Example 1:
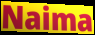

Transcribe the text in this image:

Naima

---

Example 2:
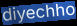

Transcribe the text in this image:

diyechho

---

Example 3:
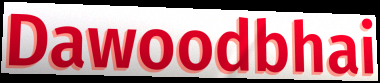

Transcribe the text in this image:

Dawoodbhai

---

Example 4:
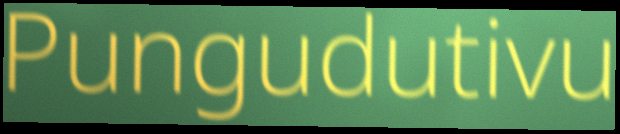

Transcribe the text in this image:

Pungudutivu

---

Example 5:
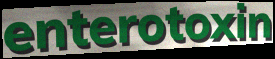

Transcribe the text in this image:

enterotoxin